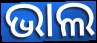
ଭାଲ